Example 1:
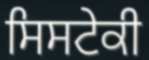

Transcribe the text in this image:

ਸਿਸਟੇਕੀ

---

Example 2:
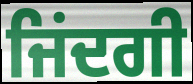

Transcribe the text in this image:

ਜਿਂਦਗੀ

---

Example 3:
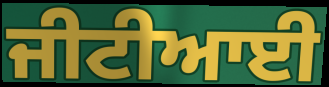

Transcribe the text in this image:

ਜੀਟੀਆਈ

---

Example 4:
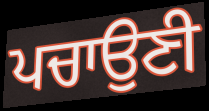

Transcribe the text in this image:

ਪਚਾਉਣੀ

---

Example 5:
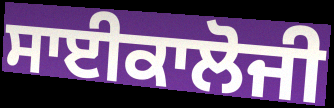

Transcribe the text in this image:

ਸਾਈਕਾਲੋਜੀ